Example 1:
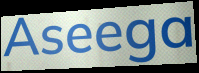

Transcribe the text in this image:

Aseega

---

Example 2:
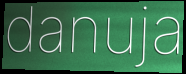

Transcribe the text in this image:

danuja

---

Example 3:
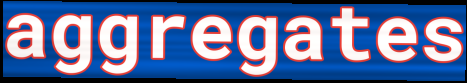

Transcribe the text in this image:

aggregates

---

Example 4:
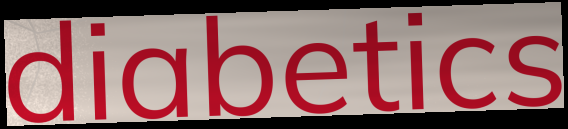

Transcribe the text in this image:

diabetics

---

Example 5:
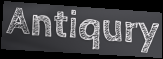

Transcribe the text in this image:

Antiqury